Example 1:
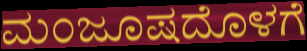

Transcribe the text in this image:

ಮಂಜೂಷದೊಳಗೆ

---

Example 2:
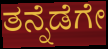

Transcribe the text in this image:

ತನ್ನೆಡೆಗೇ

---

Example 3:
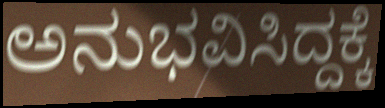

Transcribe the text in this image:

ಅನುಭವಿಸಿದ್ದಕ್ಕೆ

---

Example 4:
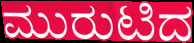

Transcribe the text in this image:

ಮುರುಟಿದ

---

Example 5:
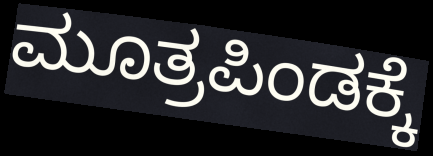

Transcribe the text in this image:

ಮೂತ್ರಪಿಂಡಕ್ಕೆ